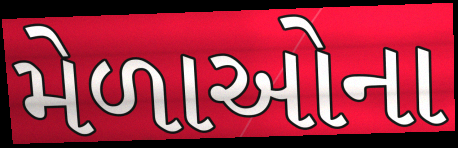
મેળાઓના